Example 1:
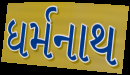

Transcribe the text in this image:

ધર્મનાથ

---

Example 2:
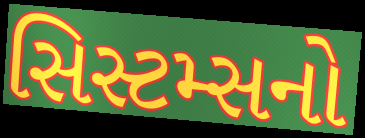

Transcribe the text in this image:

સિસ્ટમ્સનો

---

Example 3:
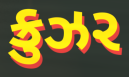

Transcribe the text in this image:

ક્રુઝર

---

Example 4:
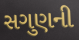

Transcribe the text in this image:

સગુણની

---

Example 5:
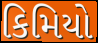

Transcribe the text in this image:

કિમિયો